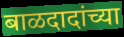
बाळदादांच्या